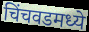
चिंचवडमध्ये